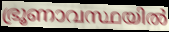
ഭ്രൂണാവസ്ഥയിൽ